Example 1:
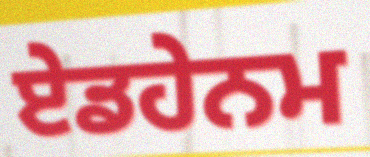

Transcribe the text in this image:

ਏਡਹੇਨਮ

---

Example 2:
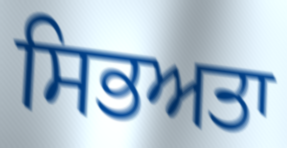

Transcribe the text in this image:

ਸਿਭਅਤਾ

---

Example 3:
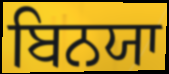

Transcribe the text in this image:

ਬਿਨਯਾ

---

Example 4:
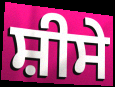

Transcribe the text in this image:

ਸ਼ੀਸੇ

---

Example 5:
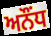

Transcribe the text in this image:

ਅਨੌਂਧ